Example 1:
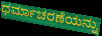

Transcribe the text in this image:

ಧರ್ಮಾಚರಣೆಯನ್ನು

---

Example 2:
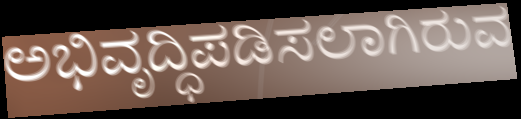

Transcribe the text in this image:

ಅಭಿವೃದ್ಧಿಪಡಿಸಲಾಗಿರುವ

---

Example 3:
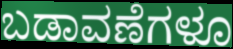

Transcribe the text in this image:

ಬಡಾವಣೆಗಳೂ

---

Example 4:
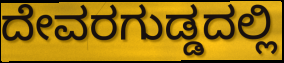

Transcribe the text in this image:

ದೇವರಗುಡ್ಡದಲ್ಲಿ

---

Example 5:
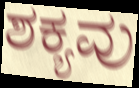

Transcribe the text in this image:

ಶಕ್ಯವು